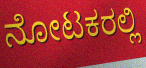
ನೋಟಕರಲ್ಲಿ